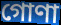
গোণা